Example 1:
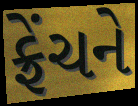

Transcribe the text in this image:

ફ્રેંચને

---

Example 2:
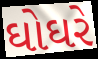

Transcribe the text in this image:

ઘોઘરે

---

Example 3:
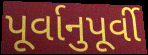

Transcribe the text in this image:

પૂર્વાનુપૂર્વી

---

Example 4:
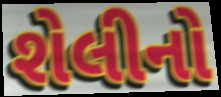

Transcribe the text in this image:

શેલીનો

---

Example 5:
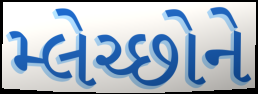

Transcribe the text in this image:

મ્લેચ્છોને